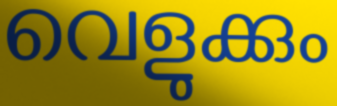
വെളുക്കും